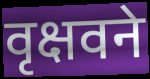
वृक्षवने